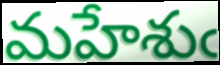
మహేశుఁ